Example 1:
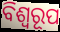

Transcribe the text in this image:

ବିଶ୍ୱରୂପ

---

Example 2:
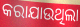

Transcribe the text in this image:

କରାଯାଉଥିଲା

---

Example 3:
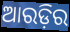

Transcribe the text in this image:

ଆରଡ଼ିର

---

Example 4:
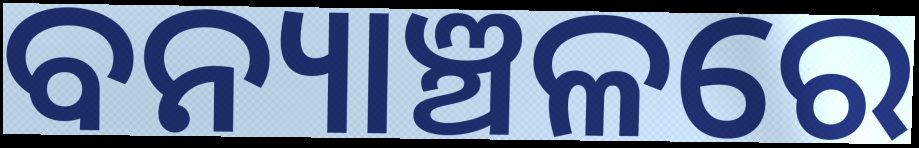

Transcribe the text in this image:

ବନ୍ୟାଞ୍ଚଳରେ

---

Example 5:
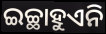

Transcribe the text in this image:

ଇଚ୍ଛାହୁଏନି